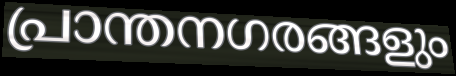
പ്രാന്തനഗരങ്ങളും